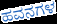
ಹವನಗಳ